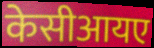
केसीआयए